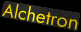
Alchetron